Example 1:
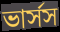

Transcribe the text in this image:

ভার্সস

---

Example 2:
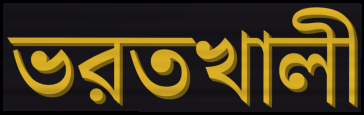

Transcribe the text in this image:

ভরতখালী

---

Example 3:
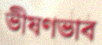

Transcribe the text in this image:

ভীষণভাব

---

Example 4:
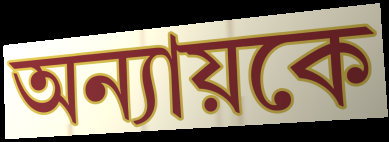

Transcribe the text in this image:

অন্যায়কে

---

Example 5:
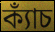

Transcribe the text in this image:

ক্যাঁচ